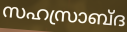
സഹസ്രാബ്ദ